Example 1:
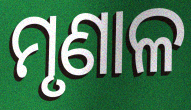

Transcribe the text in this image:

ମୃଣାଳ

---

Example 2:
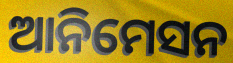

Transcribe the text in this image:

ଆନିମେସନ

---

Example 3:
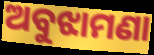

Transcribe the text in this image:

ଅବୁଝାମଣା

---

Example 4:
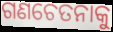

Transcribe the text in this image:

ଗଣଚେତନାକୁ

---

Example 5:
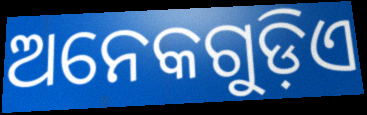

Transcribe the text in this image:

ଅନେକଗୁଡ଼ିଏ